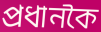
প্ৰধানকৈ